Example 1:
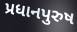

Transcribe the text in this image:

પ્રધાનપુરુષ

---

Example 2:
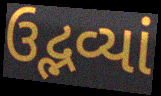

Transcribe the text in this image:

ઉદ્ભવ્યાં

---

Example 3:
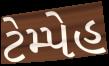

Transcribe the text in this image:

ટેમ્પેહ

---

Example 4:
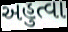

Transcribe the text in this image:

અહુત્વા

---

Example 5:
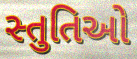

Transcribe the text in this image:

સ્તુતિઓ